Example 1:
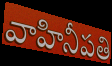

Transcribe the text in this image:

వాహినీపతి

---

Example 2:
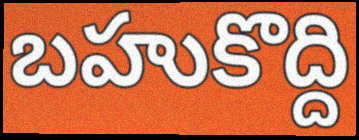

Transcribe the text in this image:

బహుకొద్ది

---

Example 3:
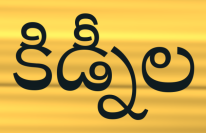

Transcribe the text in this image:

కిడ్నీల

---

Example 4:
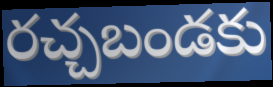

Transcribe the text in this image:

రచ్చబండకు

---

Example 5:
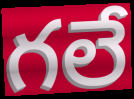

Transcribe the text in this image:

గలే